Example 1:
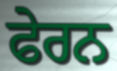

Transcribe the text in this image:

ਫੇਰਨ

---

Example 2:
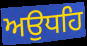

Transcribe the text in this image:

ਅਉਧਹਿ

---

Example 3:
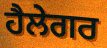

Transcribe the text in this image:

ਹੈਲੇਗਰ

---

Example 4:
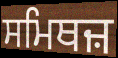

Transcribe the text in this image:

ਸਮਿਥਜ਼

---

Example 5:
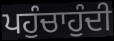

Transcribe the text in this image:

ਪਹੁੰਚਾਹੁੰਦੀ